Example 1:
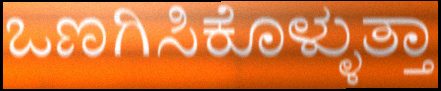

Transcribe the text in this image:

ಒಣಗಿಸಿಕೊಳ್ಳುತ್ತಾ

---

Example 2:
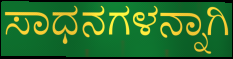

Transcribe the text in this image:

ಸಾಧನಗಳನ್ನಾಗಿ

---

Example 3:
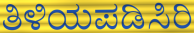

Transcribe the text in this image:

ತಿಳಿಯಪಡಿಸಿರಿ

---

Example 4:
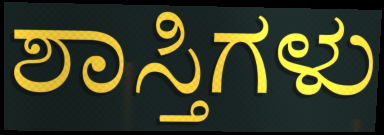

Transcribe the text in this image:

ಶಾಸ್ತಿಗಳು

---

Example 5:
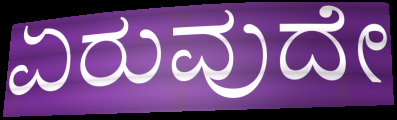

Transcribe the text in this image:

ಏರುವುದೇ